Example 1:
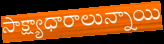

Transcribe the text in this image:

సాక్ష్యాధారాలున్నాయి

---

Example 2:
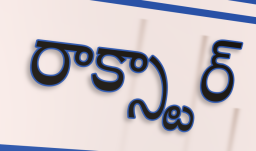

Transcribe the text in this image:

రాక్స్టార్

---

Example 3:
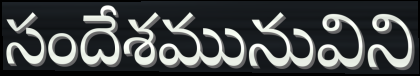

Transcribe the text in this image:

సందేశమునువిని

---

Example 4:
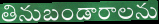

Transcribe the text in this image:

తినుబండారాలను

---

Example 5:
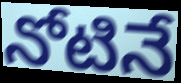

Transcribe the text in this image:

నోటినే